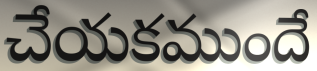
చేయకముందే